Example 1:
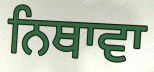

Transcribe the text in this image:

ਨਿਥਾਵਾ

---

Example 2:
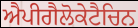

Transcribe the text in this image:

ਐਪੀਗੈਲੋਕੇਟੈਚਿਨ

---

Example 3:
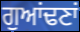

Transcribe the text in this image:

ਗੁਆਂਢਣਾਂ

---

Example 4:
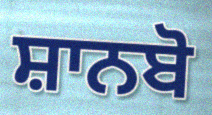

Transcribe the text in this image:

ਸ਼ਾਨਬੋ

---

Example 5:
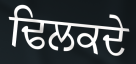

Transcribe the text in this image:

ਢਿਲਕਦੇ